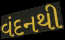
વંદનથી